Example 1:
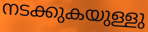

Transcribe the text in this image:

നടക്കുകയുള്ളു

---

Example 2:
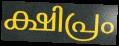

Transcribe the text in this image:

ക്ഷിപ്രം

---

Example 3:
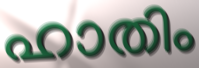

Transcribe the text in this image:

ഹാതിം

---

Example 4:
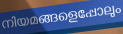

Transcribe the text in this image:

നിയമങ്ങളെപ്പോലും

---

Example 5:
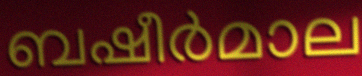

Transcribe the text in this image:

ബഷീർമാല